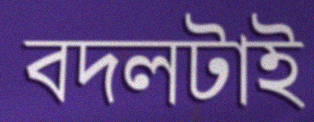
বদলটাই